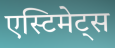
एस्टिमेट्स